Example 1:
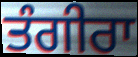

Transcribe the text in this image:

ਤੰਗੀਰਾ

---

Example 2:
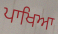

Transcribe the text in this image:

ਪਾਖਿਆ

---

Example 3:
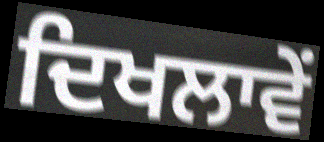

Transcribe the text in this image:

ਦਿਖਲਾਵੇਂ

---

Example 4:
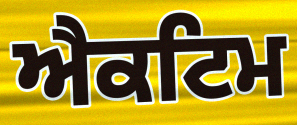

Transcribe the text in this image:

ਐਕਟਿਮ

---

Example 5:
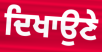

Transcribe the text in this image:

ਦਿਖਾਉਣੇ